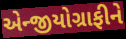
એન્જીયોગ્રાફીને